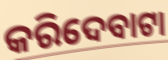
କରିଦେବାଟା